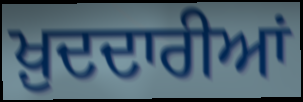
ਖ਼ੁਦਦਾਰੀਆਂ